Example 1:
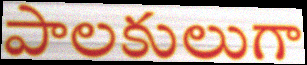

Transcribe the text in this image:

పాలకులుగా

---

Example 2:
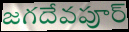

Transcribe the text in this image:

జగదేవపూర్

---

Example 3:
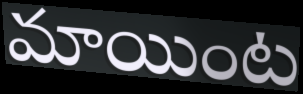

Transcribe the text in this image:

మాయింట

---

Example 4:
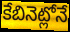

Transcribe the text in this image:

కేబినెట్లోనే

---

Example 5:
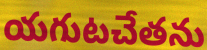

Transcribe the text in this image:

యగుటచేతను